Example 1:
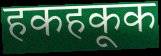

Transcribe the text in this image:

हकहकूक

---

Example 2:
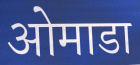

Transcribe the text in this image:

ओमाडा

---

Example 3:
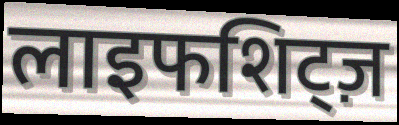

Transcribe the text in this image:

लाइफशिट्ज़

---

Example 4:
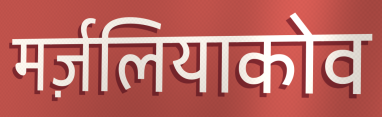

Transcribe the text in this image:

मर्ज़लियाकोव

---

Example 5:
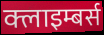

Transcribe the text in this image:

क्लाइम्बर्स